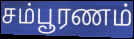
சம்பூரணம்